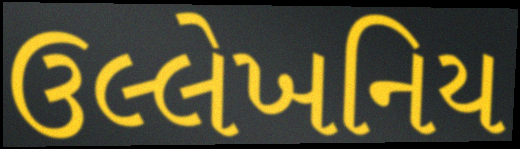
ઉલ્લેખનિય